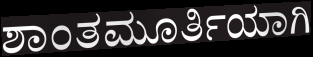
ಶಾಂತಮೂರ್ತಿಯಾಗಿ